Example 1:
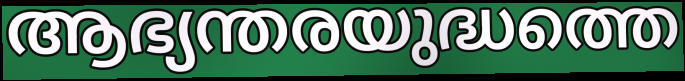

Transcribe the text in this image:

ആഭ്യന്തരയുദ്ധത്തെ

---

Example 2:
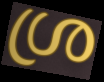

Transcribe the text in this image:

ശ്ര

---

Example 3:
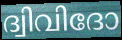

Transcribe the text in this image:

ദ്വിവിദോ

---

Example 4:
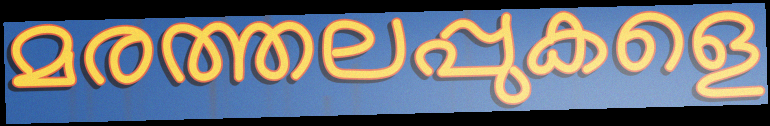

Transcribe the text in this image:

മരത്തലപ്പുകളെ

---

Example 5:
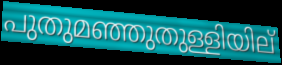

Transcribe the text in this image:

പുതുമഞ്ഞുതുള്ളിയില്